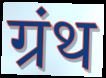
ग्रंथ